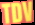
TDV